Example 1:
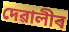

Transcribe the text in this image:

দেৱালীৰ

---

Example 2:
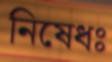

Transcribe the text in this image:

নিষেধঃ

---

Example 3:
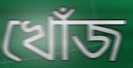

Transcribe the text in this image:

খোঁজ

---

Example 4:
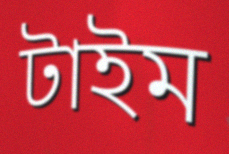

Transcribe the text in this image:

টাইম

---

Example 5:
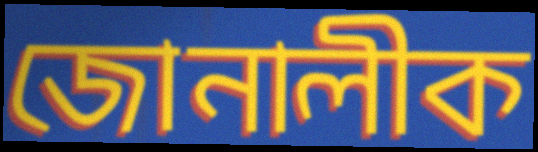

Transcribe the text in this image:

জোনালীক